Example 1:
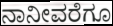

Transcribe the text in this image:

ನಾನೀವರೆಗೂ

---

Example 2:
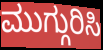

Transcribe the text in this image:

ಮುಗ್ಗುರಿಸಿ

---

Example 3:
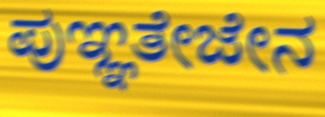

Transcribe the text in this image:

ಪುಞ್ಞತೇಜೇನ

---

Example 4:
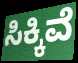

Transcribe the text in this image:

ಸಿಕ್ಕಿವೆ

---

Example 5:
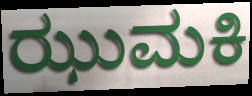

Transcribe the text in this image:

ಝುಮಕಿ